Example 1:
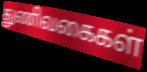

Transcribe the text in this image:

துணிவகைகள்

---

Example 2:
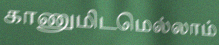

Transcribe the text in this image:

காணுமிடமெல்லாம்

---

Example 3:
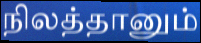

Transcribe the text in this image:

நிலத்தானும்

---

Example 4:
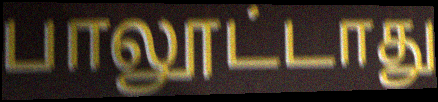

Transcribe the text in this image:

பாலூட்டாது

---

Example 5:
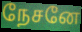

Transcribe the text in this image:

நேசனே